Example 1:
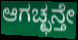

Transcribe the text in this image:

ಆಗಚ್ಛನ್ತೇ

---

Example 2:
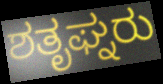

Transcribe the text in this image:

ಶತೃಘ್ನರು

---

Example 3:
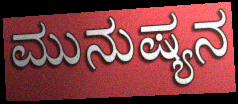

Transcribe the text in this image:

ಮುನುಷ್ಯನ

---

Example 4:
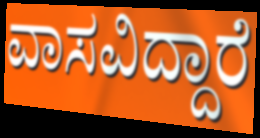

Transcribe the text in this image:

ವಾಸವಿದ್ದಾರೆ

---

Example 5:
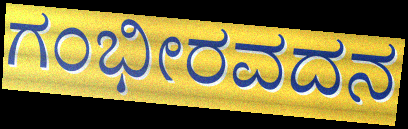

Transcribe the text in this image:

ಗಂಭೀರವದನ